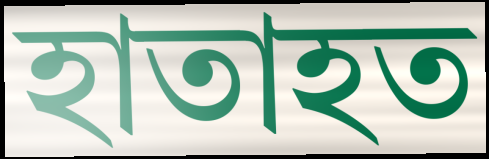
হাতাহত